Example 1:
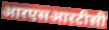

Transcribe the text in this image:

आरएसआरटीसी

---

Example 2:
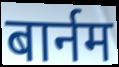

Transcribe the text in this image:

बार्नम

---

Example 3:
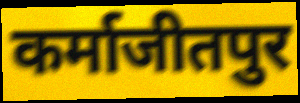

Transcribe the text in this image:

कर्माजीतपुर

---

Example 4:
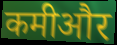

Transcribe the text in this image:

कमीऔर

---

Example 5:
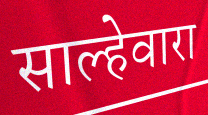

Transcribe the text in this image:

साल्हेवारा